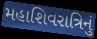
મહાશિવરાત્રિનું